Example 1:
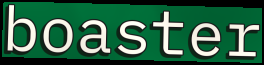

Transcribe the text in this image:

boaster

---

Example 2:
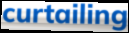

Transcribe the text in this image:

curtailing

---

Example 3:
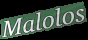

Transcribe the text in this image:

Malolos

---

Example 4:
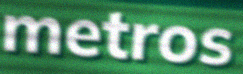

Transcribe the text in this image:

metros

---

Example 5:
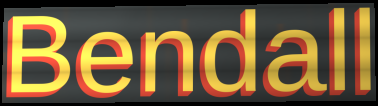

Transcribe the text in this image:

Bendall